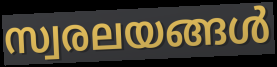
സ്വരലയങ്ങൾ